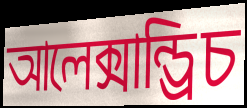
আলেক্সান্ড্রিচ